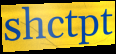
shctpt